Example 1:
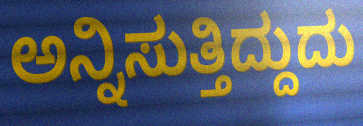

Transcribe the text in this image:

ಅನ್ನಿಸುತ್ತಿದ್ದುದು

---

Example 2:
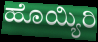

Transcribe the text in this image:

ಹೊಯ್ಯಿರಿ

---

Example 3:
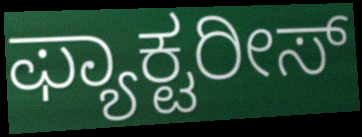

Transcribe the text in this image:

ಫ್ಯಾಕ್ಟರೀಸ್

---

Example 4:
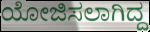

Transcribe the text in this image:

ಯೋಜಿಸಲಾಗಿದ್ದ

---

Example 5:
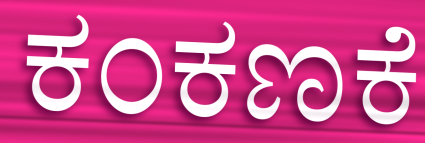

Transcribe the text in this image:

ಕಂಕಣಕೆ